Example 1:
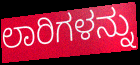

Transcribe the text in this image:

ಲಾರಿಗಳನ್ನು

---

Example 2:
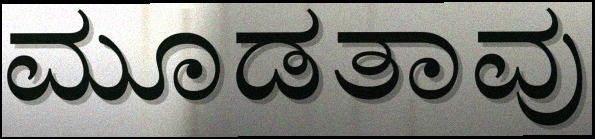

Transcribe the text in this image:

ಮೂಡತಾವು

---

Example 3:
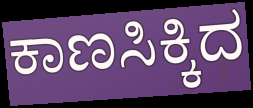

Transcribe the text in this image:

ಕಾಣಸಿಕ್ಕಿದ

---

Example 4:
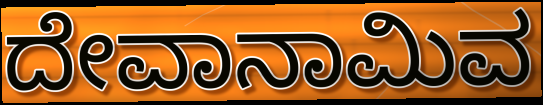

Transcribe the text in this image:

ದೇವಾನಾಮಿವ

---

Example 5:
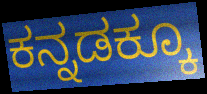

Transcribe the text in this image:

ಕನ್ನಡಕ್ಕೂ